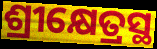
ଶ୍ରୀକ୍ଷେତ୍ରସ୍ଥ